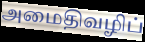
அமைதிவழிப்